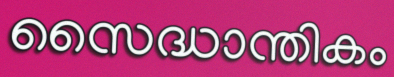
സൈദ്ധാന്തികം